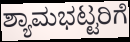
ಶ್ಯಾಮಭಟ್ಟರಿಗೆ